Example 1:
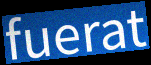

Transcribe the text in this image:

fuerat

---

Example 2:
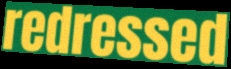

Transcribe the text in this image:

redressed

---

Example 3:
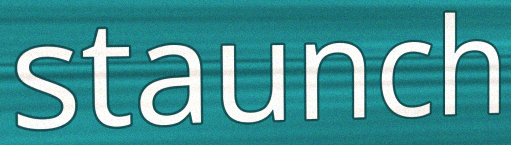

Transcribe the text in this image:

staunch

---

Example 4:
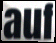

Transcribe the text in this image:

auf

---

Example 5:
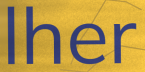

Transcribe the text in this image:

lher